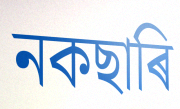
নকছাৰি